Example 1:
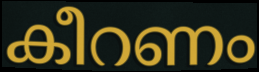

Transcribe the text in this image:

കീറണം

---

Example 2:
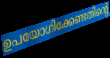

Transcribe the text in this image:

ഉപയോഗിക്കേണ്ടതിന്റെ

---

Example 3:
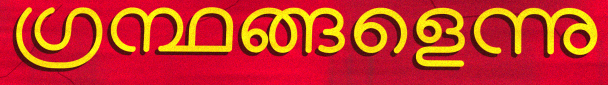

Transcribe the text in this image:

ഗ്രന്ഥങ്ങളെന്നു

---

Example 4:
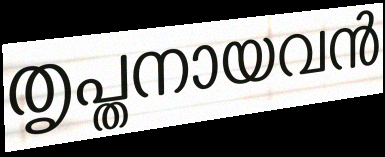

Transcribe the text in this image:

തൃപ്തനായവൻ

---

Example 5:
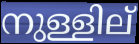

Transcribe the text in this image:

നുള്ളില്